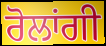
ਰੋਲਾਂਗੀ